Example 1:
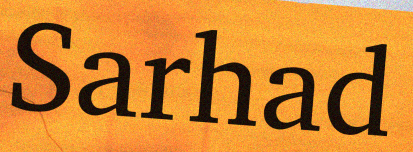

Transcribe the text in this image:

Sarhad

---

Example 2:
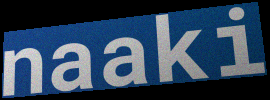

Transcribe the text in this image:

naaki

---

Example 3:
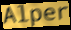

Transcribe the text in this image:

Alper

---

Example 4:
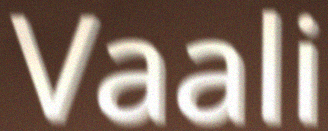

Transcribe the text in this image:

Vaali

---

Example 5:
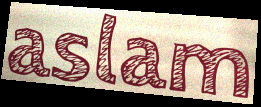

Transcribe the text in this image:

aslam